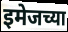
इमेजच्या